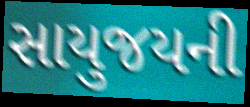
સાયુજયની